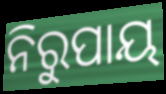
ନିରୁପାୟ